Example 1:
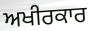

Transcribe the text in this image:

ਅਖੀਰਕਾਰ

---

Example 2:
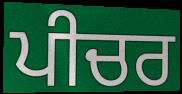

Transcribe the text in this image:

ਪੀਚਰ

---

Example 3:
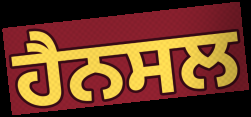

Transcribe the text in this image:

ਹੈਨਸਲ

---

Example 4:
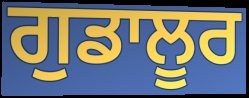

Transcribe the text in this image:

ਗੁਡਾਲੂਰ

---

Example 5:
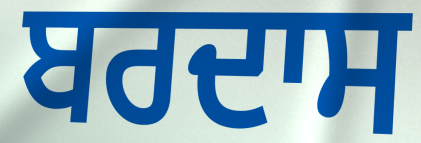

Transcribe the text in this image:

ਬਰਦਾਸ